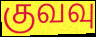
குவவு